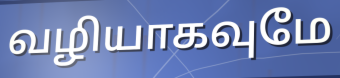
வழியாகவுமே